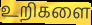
உறிகளை